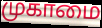
முகாமை